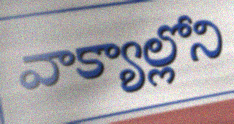
వాక్యాల్లోని